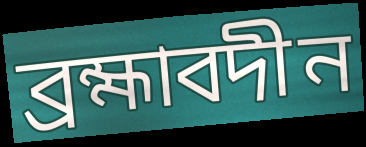
ব্ৰহ্মাবদীন